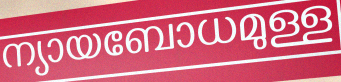
ന്യായബോധമുള്ള